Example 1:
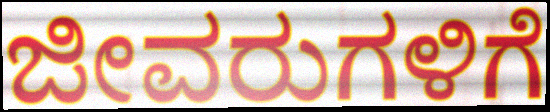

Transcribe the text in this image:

ಜೀವರುಗಳಿಗೆ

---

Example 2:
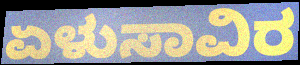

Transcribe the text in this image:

ಏಳುಸಾವಿರ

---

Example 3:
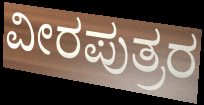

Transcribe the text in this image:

ವೀರಪುತ್ರರ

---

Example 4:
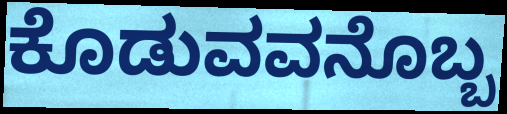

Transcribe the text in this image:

ಕೊಡುವವನೊಬ್ಬ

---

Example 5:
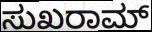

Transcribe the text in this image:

ಸುಖರಾಮ್